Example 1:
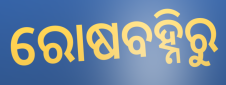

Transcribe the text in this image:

ରୋଷବହ୍ନିରୁ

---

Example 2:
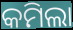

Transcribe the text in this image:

କମିଲା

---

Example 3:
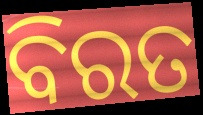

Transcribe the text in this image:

ବିରତ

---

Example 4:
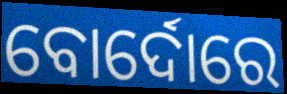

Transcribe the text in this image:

ବୋର୍ଦୋରେ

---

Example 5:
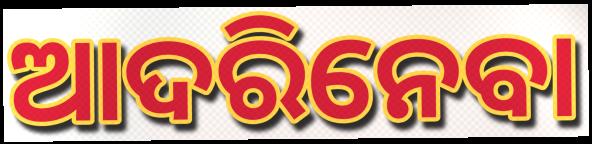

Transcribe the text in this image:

ଆଦରିନେବା